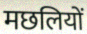
मछलियों